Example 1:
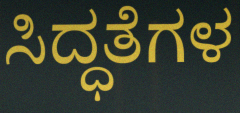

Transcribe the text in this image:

ಸಿದ್ಧತೆಗಳ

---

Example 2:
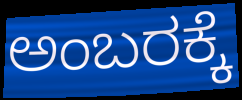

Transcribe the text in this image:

ಅಂಬರಕ್ಕೆ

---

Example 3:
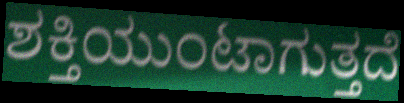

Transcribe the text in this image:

ಶಕ್ತಿಯುಂಟಾಗುತ್ತದೆ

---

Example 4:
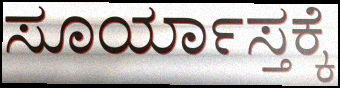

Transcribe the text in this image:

ಸೂರ್ಯಾಸ್ತಕ್ಕೆ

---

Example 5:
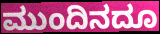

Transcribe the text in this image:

ಮುಂದಿನದೂ